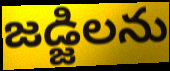
జడ్జిలను